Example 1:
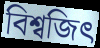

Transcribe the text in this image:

বিশ্বজিৎ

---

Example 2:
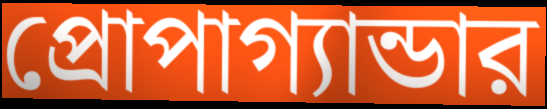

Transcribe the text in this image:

প্রোপাগ্যান্ডার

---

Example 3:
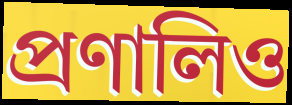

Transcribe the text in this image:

প্রণালিও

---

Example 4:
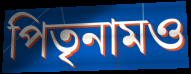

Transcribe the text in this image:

পিতৃনামও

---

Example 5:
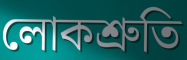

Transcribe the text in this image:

লোকশ্রুতি